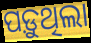
ପଡ଼ୁଥିଲା